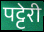
पट्टेरी